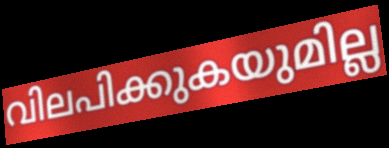
വിലപിക്കുകയുമില്ല